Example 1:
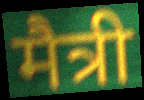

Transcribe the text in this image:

मैत्री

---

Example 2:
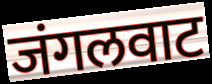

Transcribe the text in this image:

जंगलवाट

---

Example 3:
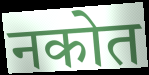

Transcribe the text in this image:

नकोत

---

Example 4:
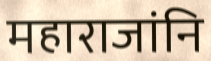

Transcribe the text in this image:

महाराजांनि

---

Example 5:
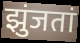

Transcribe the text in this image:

झुंजतां